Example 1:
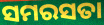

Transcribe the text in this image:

ସମରସତା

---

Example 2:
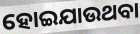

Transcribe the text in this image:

ହୋଇଯାଉଥବା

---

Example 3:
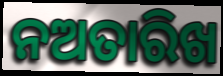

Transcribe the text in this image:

ନଅତାରିଖ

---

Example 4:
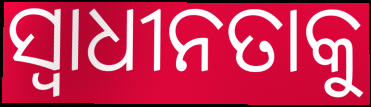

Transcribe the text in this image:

ସ୍ବାଧୀନତାକୁ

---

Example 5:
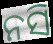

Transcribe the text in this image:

ନସି